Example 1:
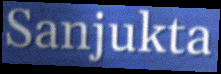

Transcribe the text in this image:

Sanjukta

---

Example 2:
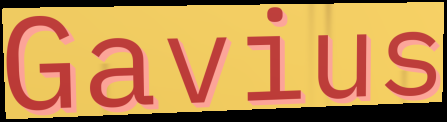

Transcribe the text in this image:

Gavius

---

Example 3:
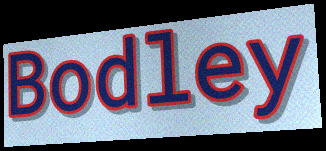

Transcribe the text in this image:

Bodley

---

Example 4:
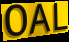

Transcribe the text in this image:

OAL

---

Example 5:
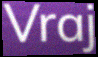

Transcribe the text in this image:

Vraj